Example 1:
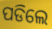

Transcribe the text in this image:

ପଡିଲେ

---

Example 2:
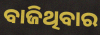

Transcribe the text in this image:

ବାଜିଥିବାର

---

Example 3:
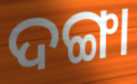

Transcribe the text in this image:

ଦଙ୍ଗା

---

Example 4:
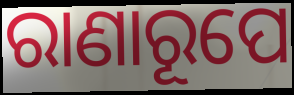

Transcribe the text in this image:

ରାଣାରୂପେ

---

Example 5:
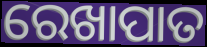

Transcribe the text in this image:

ରେଖାପାତ